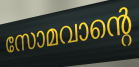
സോമവാന്റെ